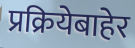
प्रक्रियेबाहेर